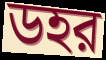
ডহর